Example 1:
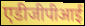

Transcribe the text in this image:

एडीजीपीआई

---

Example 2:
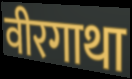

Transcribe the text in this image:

वीरगाथा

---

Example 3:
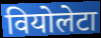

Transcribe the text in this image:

वियोलेटा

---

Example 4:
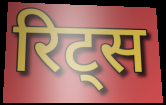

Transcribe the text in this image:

रिट्स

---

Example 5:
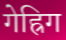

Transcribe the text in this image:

गेह्रिग